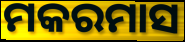
ମକରମାସ